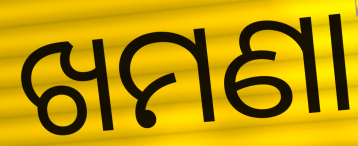
ଖମଣା